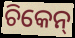
ଚିକେନ୍